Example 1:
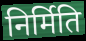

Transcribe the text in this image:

निर्मिति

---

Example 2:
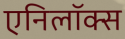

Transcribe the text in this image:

एनिलॉक्स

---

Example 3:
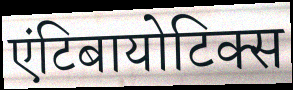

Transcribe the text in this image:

एंटिबायोटिक्स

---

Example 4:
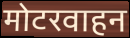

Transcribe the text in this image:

मोटरवाहन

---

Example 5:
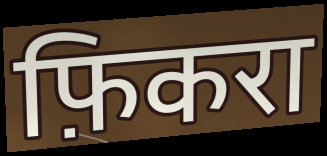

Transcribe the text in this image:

फ़िकरा